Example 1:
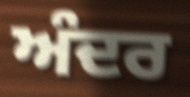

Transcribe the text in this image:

ਅੰਦਰ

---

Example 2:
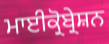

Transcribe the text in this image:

ਮਾਈਕ੍ਰੋਬ੍ਰੇਸ਼ਨ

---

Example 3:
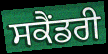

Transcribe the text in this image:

ਸਕੈੰਡਰੀ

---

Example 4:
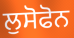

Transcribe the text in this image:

ਲੁਸੋਫੋਨ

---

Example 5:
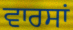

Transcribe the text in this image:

ਵਾਰਸਾਂ